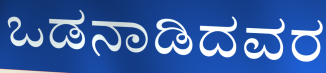
ಒಡನಾಡಿದವರ